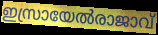
ഇസ്രായേൽരാജാവ്